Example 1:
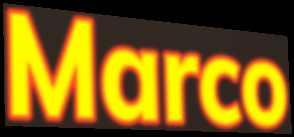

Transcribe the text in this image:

Marco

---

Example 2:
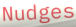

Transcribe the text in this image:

Nudges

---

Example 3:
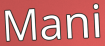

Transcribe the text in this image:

Mani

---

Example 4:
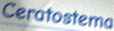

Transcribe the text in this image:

Ceratostema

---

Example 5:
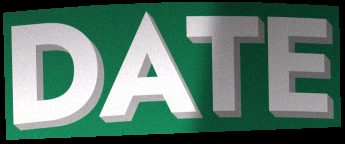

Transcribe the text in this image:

DATE